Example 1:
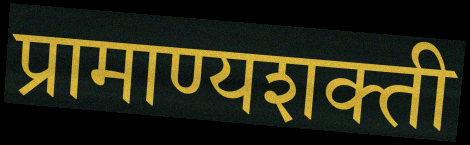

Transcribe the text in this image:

प्रामाण्यशक्ती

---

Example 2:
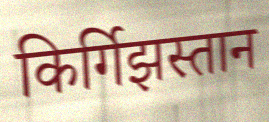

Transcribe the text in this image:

किर्गिझस्तान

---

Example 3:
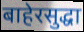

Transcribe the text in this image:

बाहेरसुद्धा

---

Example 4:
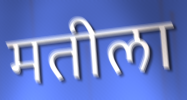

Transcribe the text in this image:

मतीला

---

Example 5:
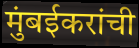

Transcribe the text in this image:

मुंबईकरांची